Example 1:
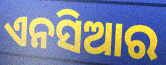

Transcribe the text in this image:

ଏନସିଆର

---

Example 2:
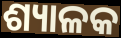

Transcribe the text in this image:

ଶ୍ୟାଳକ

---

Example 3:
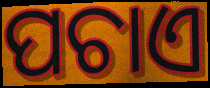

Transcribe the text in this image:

ପଚାଏ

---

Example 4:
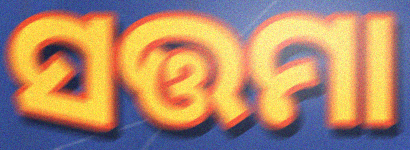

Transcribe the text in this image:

ସତ୍ତମା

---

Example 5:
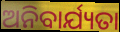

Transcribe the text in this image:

ଅନିବାର୍ଯ୍ୟତା